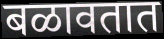
बळावतात